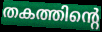
തകത്തിന്റെ